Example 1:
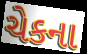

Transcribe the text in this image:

ચેકના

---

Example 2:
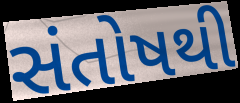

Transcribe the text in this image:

સંતોષથી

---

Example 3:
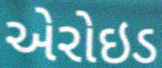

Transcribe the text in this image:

એરોઇડ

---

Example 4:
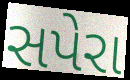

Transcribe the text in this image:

સપેરા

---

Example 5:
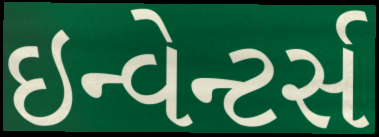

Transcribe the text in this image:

ઇન્વેન્ટર્સ